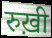
रुख़ी